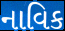
નાવિક